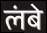
लंबे